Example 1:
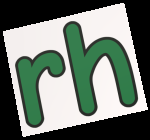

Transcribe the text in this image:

rh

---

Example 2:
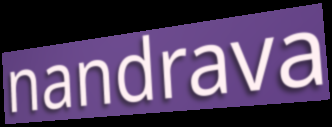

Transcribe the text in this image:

nandrava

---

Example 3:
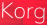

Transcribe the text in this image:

Korg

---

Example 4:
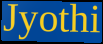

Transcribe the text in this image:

Jyothi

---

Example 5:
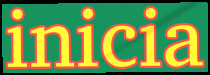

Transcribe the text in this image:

inicia